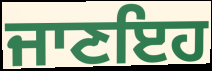
ਜਾਣਇਹ